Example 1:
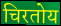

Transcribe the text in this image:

चिरतोय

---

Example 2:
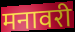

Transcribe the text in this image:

मनावरी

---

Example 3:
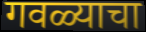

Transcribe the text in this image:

गवळ्याचा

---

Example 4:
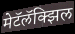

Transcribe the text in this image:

मेटॅलॅक्झिल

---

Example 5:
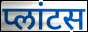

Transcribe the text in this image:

प्लांटस